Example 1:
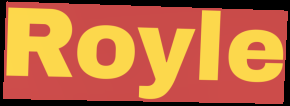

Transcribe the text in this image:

Royle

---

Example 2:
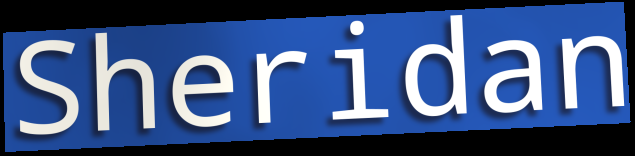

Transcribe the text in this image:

Sheridan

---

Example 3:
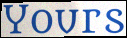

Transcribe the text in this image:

Yours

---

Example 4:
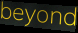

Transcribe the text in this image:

beyond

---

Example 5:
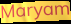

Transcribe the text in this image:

Maryam